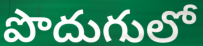
పొదుగులో